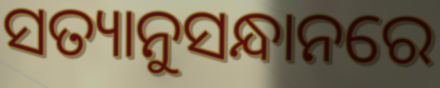
ସତ୍ୟାନୁସନ୍ଧାନରେ